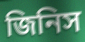
জিনিস